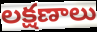
లక్షణాలు